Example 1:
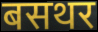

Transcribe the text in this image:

बसथर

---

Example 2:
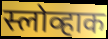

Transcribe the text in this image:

स्लोव्हाक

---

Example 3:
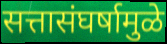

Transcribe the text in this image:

सत्तासंघर्षामुळे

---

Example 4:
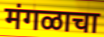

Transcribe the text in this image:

मंगळाचा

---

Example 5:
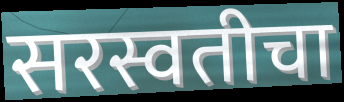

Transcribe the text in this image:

सरस्वतीचा